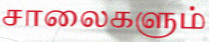
சாலைகளும்